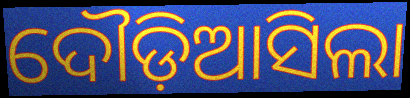
ଦୌଡ଼ିଆସିଲା